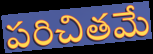
పరిచితమే